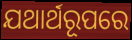
ଯଥାର୍ଥରୂପରେ